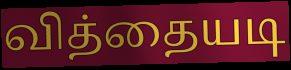
வித்தையடி